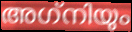
അഗ്‌നിയും